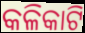
କଳିକାଟି